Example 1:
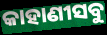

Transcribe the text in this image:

କାହାଣୀସବୁ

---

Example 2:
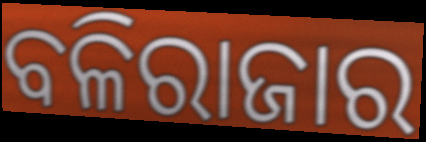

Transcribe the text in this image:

ବଳିରାଜାର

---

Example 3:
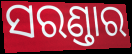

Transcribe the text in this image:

ସରଣ୍ଡାର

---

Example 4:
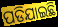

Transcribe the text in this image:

ପଡିଯାଇଛି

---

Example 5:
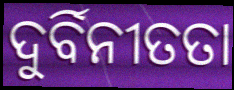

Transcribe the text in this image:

ଦୁର୍ବିନୀତତା